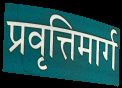
प्रवृत्तिमार्ग